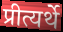
प्रीत्यर्थे